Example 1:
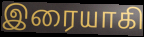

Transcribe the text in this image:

இரையாகி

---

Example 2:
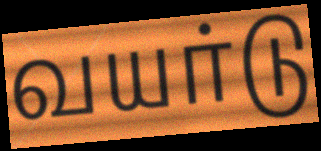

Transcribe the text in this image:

வயர்டு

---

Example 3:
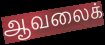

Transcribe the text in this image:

ஆவலைக்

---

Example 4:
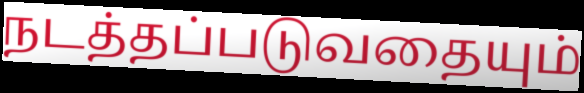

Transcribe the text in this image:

நடத்தப்படுவதையும்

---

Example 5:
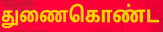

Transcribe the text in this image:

துணைகொண்ட